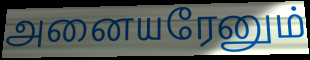
அனையரேனும்